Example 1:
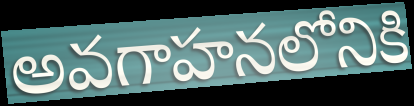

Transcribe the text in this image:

అవగాహనలోనికి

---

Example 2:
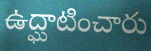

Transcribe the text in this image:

ఉద్ఘాటించారు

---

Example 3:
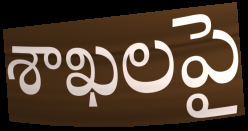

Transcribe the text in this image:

శాఖలపై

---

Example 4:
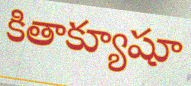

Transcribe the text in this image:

కితాక్యూషూ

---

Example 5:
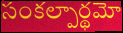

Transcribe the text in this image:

సంకల్పార్థమో